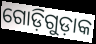
ଗୋଡ଼ିଗୁଡ଼ାକ